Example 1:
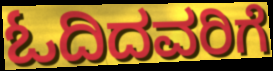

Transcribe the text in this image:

ಓದಿದವರಿಗೆ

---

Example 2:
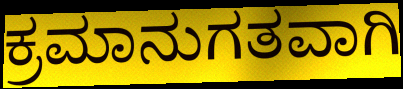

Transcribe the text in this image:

ಕ್ರಮಾನುಗತವಾಗಿ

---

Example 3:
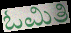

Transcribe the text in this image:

ಓಮಿತಿ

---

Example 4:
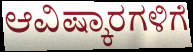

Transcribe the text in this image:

ಆವಿಷ್ಕಾರಗಳಿಗೆ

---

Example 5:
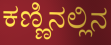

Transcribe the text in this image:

ಕಣ್ಣಿನಲ್ಲಿನ